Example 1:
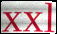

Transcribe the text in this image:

xxl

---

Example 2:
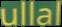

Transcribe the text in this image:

ullal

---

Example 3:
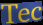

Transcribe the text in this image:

Tec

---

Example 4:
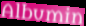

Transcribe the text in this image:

Albumin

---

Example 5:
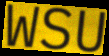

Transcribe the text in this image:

WSU